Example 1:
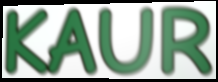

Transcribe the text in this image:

KAUR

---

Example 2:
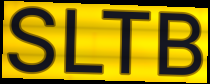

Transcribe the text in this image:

SLTB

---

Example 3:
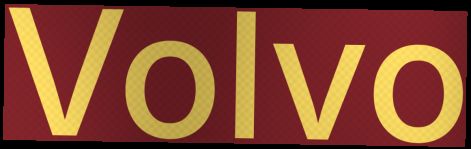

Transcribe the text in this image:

Volvo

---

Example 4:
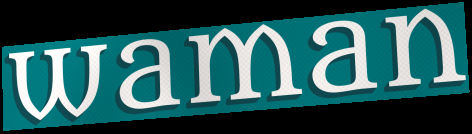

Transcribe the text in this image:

waman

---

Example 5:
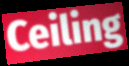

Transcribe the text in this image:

Ceiling